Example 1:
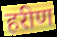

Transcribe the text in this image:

हरीण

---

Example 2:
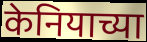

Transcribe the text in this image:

केनियाच्या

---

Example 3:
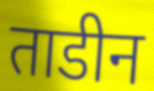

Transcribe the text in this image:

ताडीन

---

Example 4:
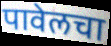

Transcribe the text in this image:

पावेलचा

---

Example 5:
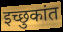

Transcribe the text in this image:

इच्छुकांत